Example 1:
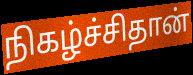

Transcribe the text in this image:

நிகழ்ச்சிதான்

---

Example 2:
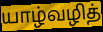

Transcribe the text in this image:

யாழ்வழித்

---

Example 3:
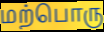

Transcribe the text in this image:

மற்பொரு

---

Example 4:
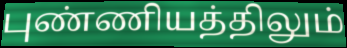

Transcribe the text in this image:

புண்ணியத்திலும்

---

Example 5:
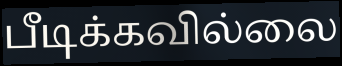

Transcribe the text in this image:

பீடிக்கவில்லை